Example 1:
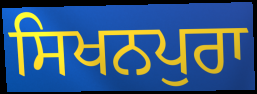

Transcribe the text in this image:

ਸਿਖਨਪੁਰਾ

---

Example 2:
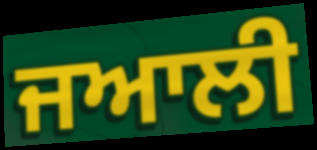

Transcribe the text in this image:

ਜਆਲੀ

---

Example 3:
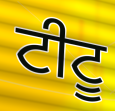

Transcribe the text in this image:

ਟੀਟੂ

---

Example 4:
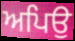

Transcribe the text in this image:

ਅਪਿਉ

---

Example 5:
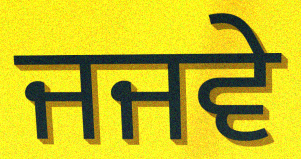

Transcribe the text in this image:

ਜਜਵੇ